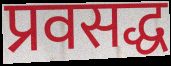
प्रवसद्ध